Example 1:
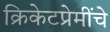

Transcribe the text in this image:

क्रिकेटप्रेमींचे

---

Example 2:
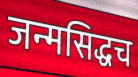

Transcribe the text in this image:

जन्मसिद्धच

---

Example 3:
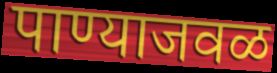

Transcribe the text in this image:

पाण्याजवळ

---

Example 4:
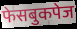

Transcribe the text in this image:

फेसबुकपेज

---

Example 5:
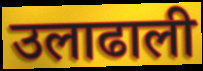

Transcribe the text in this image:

उलाढाली